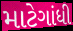
માટેગાંધી